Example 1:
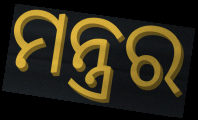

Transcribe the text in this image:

ମନ୍ତ୍ରର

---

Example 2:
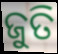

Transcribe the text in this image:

ଜୁତି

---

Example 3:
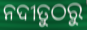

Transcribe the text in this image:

ନଦୀତୁଠରୁ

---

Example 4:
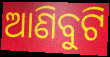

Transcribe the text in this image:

ଆଣିବୁଟି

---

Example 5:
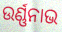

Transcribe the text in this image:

ଉର୍ଣ୍ଣନାଭ